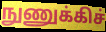
நுணுக்கிச்